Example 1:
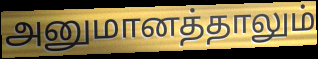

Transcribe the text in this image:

அனுமானத்தாலும்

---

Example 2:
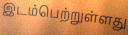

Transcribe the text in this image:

இடம்பெற்றுள்ளது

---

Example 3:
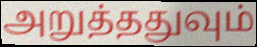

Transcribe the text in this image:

அறுத்ததுவும்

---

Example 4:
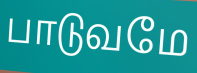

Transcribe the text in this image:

பாடுவமே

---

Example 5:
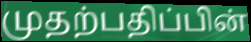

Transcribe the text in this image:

முதற்பதிப்பின்